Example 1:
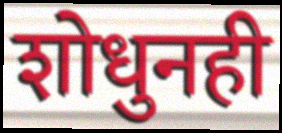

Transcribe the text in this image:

शोधुनही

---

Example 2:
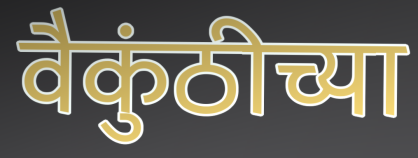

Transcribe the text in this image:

वैकुंठीच्या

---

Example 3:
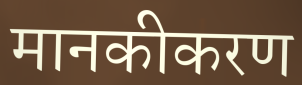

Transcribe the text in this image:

मानकीकरण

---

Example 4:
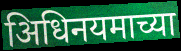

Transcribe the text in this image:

अिधिनयमाच्या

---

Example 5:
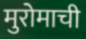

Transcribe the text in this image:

मुरोमाची